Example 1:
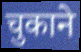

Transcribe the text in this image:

चुकाने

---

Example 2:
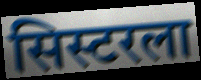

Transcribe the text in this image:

सिस्टरला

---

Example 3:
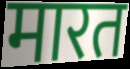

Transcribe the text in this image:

मारत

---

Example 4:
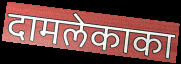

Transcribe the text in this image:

दामलेकाका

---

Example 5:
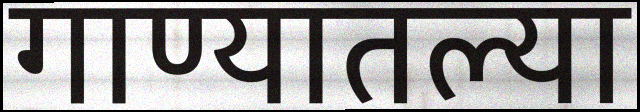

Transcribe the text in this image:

गाण्यातल्या